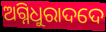
ଅଗ୍ନିଧୁରାଦଦେ